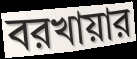
বরখায়ার